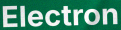
Electron